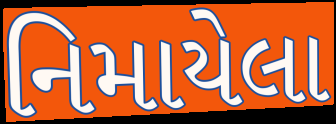
નિમાયેલા